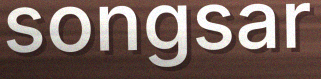
songsar